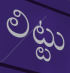
లిట్టు